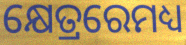
କ୍ଷେତ୍ରରେମଧ୍ୟ